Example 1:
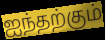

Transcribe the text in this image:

ஐந்தற்கும்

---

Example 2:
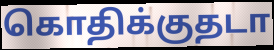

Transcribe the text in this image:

கொதிக்குதடா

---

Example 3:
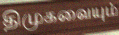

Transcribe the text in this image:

திமுகவையும்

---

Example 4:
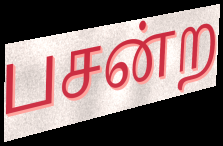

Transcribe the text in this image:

பசன்ற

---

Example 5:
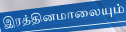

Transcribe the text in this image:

இரத்தினமாலையும்